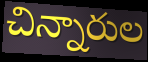
చిన్నారుల